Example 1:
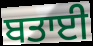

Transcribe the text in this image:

ਬਤਾਈ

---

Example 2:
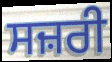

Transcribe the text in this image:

ਸਜ਼ਰੀ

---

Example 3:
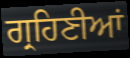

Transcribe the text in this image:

ਗ੍ਰਹਿਣੀਆਂ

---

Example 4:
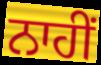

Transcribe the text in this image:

ਨਾਹੀਂ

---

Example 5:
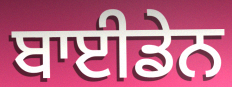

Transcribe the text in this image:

ਬਾਈਡੇਨ